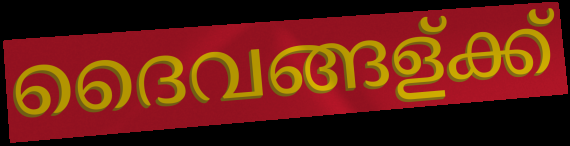
ദൈവങ്ങള്ക്ക്